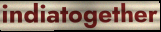
indiatogether